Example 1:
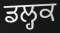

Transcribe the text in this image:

ਡਲ੍ਹਕ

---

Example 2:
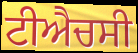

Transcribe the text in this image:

ਟੀਐਚਸੀ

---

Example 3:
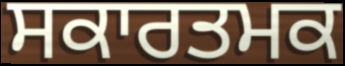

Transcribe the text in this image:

ਸਕਾਰਤਮਕ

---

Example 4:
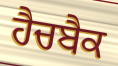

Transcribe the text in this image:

ਹੈਚਬੈਕ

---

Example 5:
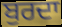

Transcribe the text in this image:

ਬੁਰਦਾ